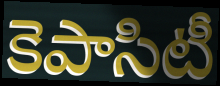
కెపాసిటీ